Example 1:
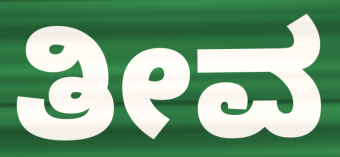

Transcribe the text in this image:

ತೀವ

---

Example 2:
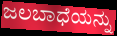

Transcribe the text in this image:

ಜಲಬಾಧೆಯನ್ನು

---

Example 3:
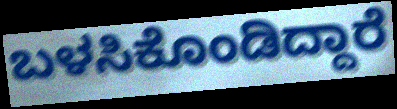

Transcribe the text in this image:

ಬಳಸಿಕೊಂಡಿದ್ದಾರೆ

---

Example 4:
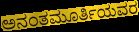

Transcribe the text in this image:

ಅನಂತಮೂರ್ತಿಯವರ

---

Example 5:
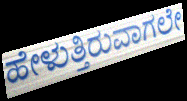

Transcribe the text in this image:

ಹೇಳುತ್ತಿರುವಾಗಲೇ